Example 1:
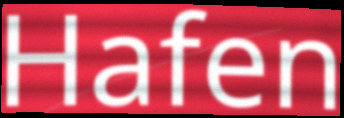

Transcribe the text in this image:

Hafen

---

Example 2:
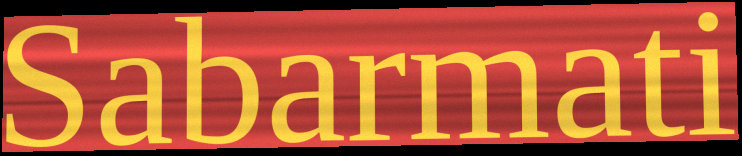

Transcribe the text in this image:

Sabarmati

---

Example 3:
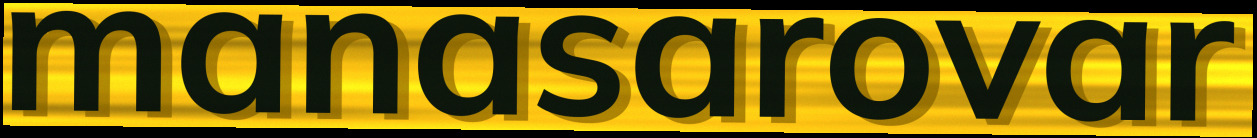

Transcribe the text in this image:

manasarovar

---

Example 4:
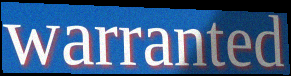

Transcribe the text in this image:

warranted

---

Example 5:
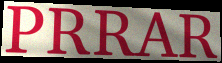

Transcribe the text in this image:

PRRAR